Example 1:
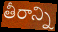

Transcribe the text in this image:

తీరాన్ని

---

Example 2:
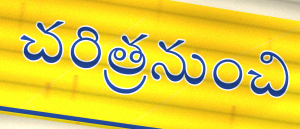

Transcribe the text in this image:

చరిత్రనుంచి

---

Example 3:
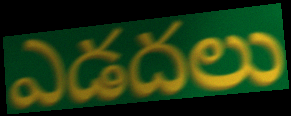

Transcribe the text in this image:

ఎడదలు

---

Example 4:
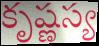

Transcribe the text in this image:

కృష్ణస్య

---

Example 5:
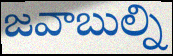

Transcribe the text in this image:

జవాబుల్ని